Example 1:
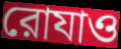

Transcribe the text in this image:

রোযাও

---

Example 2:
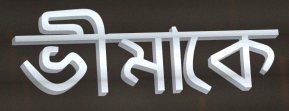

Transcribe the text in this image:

ভীমাকে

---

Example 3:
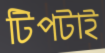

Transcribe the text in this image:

টিপটাই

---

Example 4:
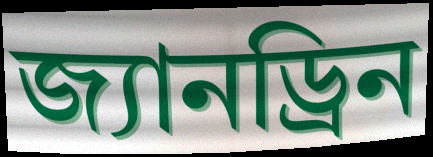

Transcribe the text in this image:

জ্যানড্রিন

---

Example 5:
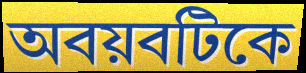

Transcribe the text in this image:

অবয়বটিকে